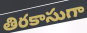
తిరకాసుగా